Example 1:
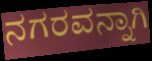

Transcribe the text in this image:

ನಗರವನ್ನಾಗಿ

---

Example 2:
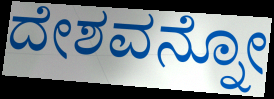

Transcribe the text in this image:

ದೇಶವನ್ನೋ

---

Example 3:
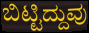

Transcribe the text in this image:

ಬಿಟ್ಟಿದ್ದುವು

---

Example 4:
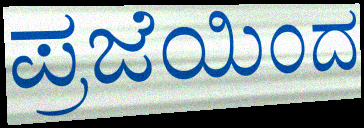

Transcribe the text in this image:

ಪ್ರಜೆಯಿಂದ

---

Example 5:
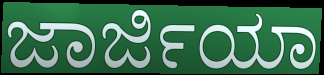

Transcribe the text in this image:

ಜಾರ್ಜಿಯಾ